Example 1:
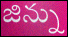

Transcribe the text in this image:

జిన్ను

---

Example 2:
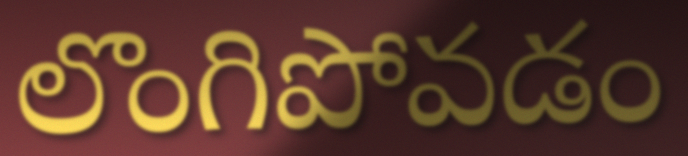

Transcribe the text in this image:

లొంగిపోవడం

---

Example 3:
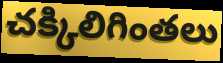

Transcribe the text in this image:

చక్కిలిగింతలు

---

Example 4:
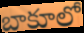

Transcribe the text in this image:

బాకూలో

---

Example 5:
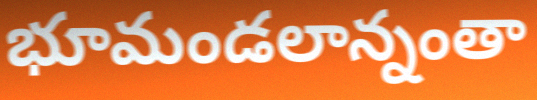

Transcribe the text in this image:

భూమండలాన్నంతా